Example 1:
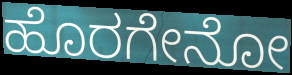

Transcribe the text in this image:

ಹೊರಗೇನೋ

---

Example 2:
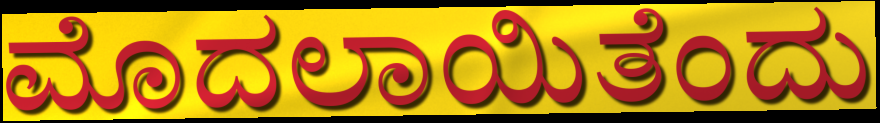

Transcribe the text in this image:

ಮೊದಲಾಯಿತೆಂದು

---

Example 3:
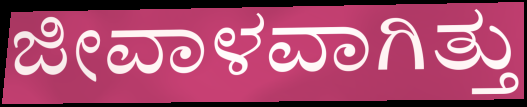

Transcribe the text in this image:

ಜೀವಾಳವಾಗಿತ್ತು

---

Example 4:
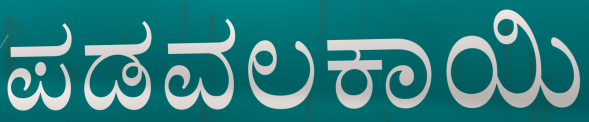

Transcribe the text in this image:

ಪಡವಲಕಾಯಿ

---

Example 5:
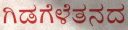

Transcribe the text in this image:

ಗಿಡಗೆಳೆತನದ